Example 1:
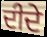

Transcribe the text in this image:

ਦੀਦੇ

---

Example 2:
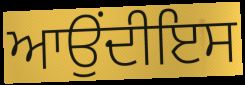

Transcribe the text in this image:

ਆਉਂਦੀਇਸ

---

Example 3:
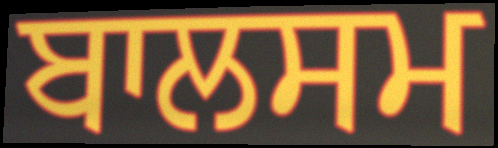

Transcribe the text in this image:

ਬਾਲਸਮ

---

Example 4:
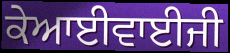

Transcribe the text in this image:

ਕੇਆਈਵਾਈਜੀ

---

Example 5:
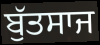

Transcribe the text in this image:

ਬੁੱਤਸਾਜ